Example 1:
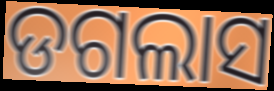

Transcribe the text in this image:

ଡଗଲାସ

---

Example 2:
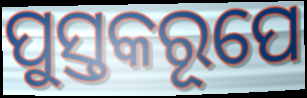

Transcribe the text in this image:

ପୁସ୍ତକରୂପେ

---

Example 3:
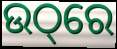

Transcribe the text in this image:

ଉଠ୍‌ରେ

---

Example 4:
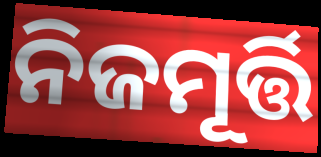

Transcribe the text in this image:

ନିଜମୂର୍ତ୍ତି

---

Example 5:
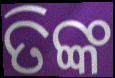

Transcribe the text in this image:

ତିଙ୍କ